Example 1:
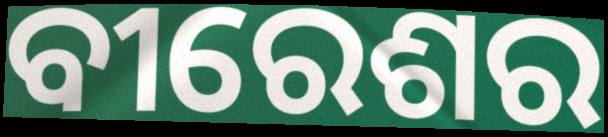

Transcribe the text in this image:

ବୀରେଶର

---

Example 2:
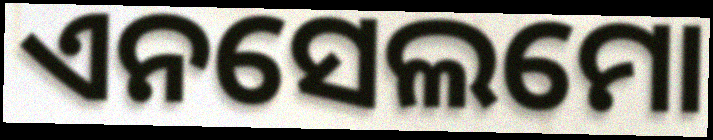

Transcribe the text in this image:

ଏନସେଲମୋ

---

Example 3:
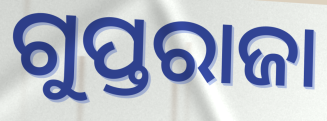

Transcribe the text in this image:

ଗୁପ୍ତରାଜା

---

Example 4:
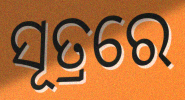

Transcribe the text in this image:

ସୂତ୍ରରେ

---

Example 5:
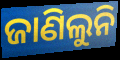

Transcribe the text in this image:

ଜାଣିଲୁନି